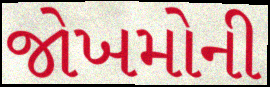
જોખમોની